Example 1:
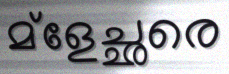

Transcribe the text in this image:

മ്ളേച്ഛരെ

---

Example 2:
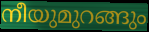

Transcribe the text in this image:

നീയുമുറങ്ങും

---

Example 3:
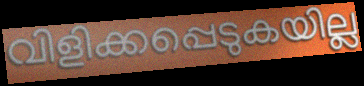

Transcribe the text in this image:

വിളിക്കപ്പെടുകയില്ല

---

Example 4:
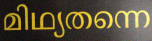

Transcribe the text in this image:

മിഥ്യതന്നെ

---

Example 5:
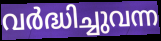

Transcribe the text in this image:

വർദ്ധിച്ചുവന്ന